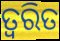
ତ୍ବରିତ